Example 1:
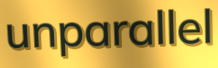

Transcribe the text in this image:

unparallel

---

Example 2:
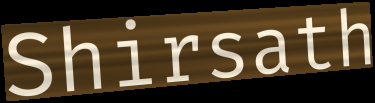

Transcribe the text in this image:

Shirsath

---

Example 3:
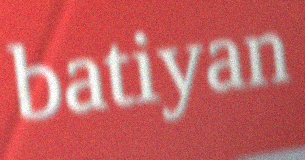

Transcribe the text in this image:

batiyan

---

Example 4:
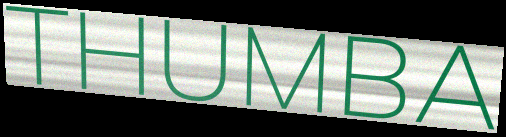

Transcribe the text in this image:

THUMBA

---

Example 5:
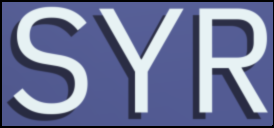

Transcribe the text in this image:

SYR